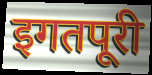
इगतपूरी